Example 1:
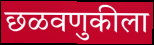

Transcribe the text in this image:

छळवणुकीला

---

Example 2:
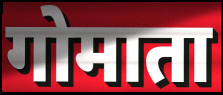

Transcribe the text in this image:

गोमाता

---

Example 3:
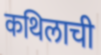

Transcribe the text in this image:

कथिलाची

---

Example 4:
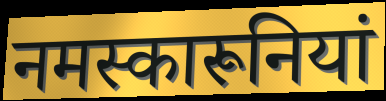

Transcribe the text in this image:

नमस्कारूनियां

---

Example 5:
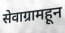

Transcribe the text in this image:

सेवाग्रामहून